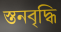
স্তনবৃদ্ধি